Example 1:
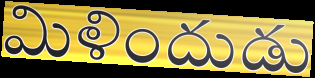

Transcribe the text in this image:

మిళిందుడు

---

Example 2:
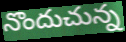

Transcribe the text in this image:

నొందుచున్న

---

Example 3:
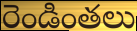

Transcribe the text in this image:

రెండింతలు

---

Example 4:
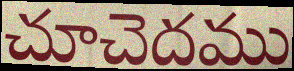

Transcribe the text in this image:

చూచెదము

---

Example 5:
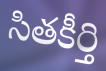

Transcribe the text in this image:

సితకీర్తి